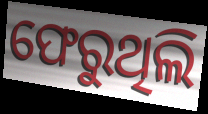
ଫେରୁଥିଲି